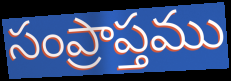
సంప్రాప్తము